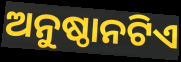
ଅନୁଷ୍ଠାନଟିଏ